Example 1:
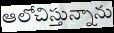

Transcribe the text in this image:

ఆలోచిస్తున్నాను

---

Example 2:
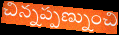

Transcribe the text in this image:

చిన్నప్పణ్నుంచి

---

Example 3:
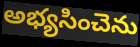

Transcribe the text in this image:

అభ్యసించెను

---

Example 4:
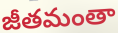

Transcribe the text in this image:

జీతమంతా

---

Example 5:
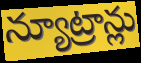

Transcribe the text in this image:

న్యూట్రాన్లు